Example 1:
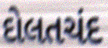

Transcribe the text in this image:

દોલતચંદ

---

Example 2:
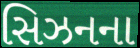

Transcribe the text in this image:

સિઝનના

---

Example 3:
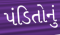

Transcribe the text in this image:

પંડિતોનું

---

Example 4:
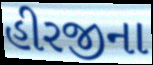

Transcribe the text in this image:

હીરજીના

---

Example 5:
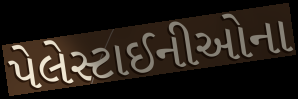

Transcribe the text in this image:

પેલેસ્ટાઈનીઓના